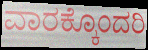
ವಾರಕ್ಕೊಂದರಿ